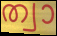
ത്വാ